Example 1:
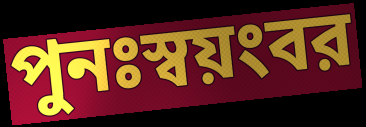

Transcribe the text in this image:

পুনঃস্বয়ংবর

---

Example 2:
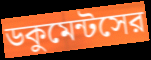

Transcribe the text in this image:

ডকুমেন্টসের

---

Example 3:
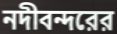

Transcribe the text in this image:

নদীবন্দরের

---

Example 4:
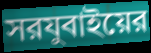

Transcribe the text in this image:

সরযুবাইয়ের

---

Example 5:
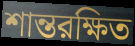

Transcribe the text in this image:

শান্তরক্ষিত